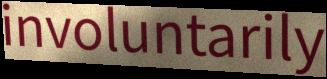
involuntarily